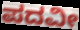
ಪದವೀ